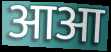
आआ